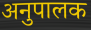
अनुपालक